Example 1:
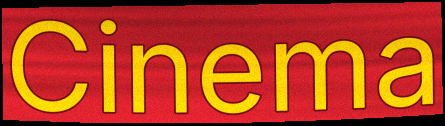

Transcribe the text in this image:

Cinema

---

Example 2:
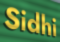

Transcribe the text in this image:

Sidhi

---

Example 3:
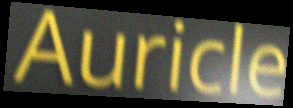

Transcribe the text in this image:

Auricle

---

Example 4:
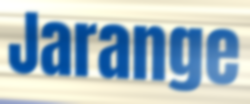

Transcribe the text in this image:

Jarange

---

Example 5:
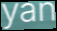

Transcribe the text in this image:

yan